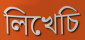
লিখেচি